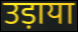
उड़ाया